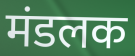
मंडलक